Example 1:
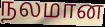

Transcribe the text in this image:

நலமான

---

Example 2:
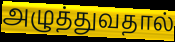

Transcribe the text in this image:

அழுத்துவதால்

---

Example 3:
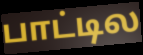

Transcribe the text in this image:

பாட்டில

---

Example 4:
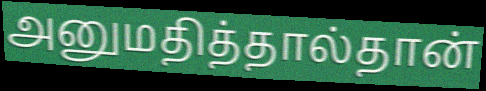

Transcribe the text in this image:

அனுமதித்தால்தான்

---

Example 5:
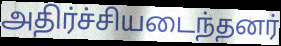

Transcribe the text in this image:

அதிர்ச்சியடைந்தனர்